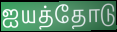
ஐயத்தோடு